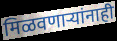
मिळवणाऱ्यांनाही